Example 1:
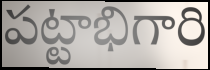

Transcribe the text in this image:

పట్టాభిగారి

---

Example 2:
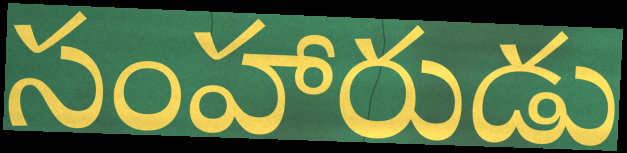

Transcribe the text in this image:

సంహారుడు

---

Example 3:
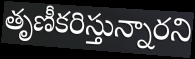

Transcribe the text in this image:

తృణీకరిస్తున్నారని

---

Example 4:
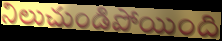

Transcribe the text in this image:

నిలుచుండిపోయింది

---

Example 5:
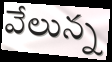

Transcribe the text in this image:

వేలున్న